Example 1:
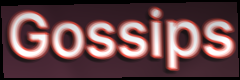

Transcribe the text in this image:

Gossips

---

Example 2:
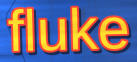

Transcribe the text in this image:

fluke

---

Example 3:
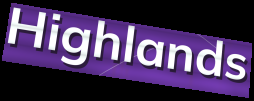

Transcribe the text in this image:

Highlands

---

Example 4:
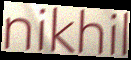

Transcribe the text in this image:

nikhil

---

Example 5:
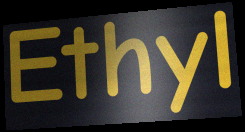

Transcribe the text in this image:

Ethyl